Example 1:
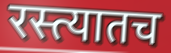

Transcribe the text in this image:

रस्त्यातच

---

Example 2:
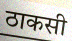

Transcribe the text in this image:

ठाकसी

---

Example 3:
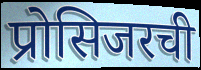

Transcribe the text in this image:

प्रोसिजरची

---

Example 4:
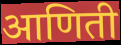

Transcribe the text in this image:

आणिती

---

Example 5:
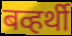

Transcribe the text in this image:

बव्हर्थी